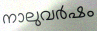
നാലുവർഷം